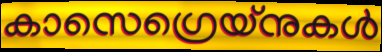
കാസെഗ്രെയ്നുകൾ